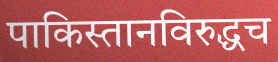
पाकिस्तानविरुद्धच